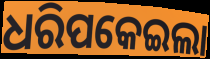
ଧରିପକେଇଲା